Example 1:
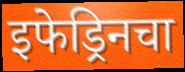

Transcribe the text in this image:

इफेड्रिनचा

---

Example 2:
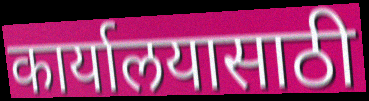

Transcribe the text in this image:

कार्यालयासाठी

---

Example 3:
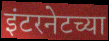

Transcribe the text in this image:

इंटरनेटच्या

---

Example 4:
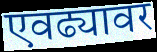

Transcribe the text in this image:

एवढ्यावर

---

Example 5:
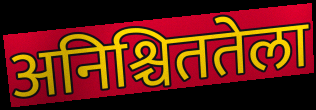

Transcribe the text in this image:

अनिश्चिततेला